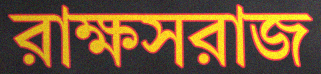
রাক্ষসরাজ